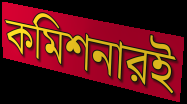
কমিশনারই